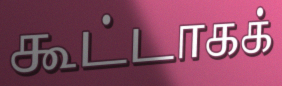
கூட்டாகக்